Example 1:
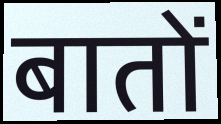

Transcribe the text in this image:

बातों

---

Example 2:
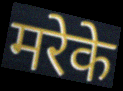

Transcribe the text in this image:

मरेके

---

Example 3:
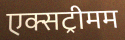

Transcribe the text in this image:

एक्सट्रीमम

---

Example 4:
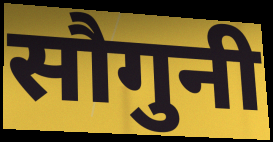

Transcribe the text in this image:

सौगुनी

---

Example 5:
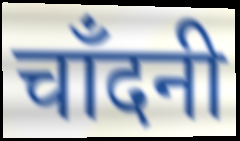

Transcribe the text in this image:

चाँदनी